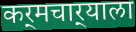
कर्मचार्याला